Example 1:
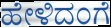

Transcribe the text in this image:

ಹೇಳಿದಂಗೆ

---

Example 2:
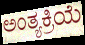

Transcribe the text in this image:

ಅಂತ್ಯಕ್ರಿಯೆ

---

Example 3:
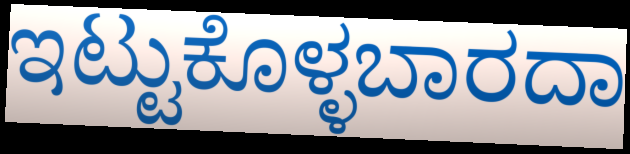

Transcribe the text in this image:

ಇಟ್ಟುಕೊಳ್ಳಬಾರದಾ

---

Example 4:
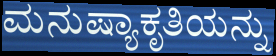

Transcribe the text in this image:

ಮನುಷ್ಯಾಕೃತಿಯನ್ನು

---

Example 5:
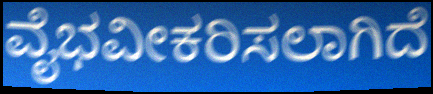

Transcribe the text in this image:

ವೈಭವೀಕರಿಸಲಾಗಿದೆ